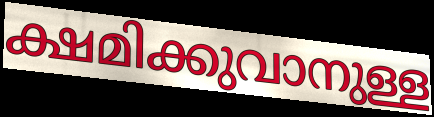
ക്ഷമിക്കുവാനുള്ള